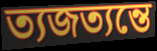
ত্যজত্যন্তে